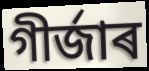
গীৰ্জাৰ